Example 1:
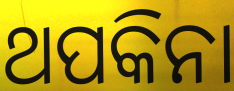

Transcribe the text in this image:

ଥପକିନା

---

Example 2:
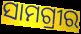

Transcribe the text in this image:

ସାମଗ୍ରୀର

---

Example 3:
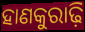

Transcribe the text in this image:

ହାଣକୁରାଢ଼ି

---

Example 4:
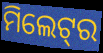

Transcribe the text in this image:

ମିଲେଟ୍‌ର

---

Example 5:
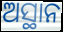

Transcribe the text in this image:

ଅସ୍ଥାନ